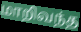
மாறிவந்த